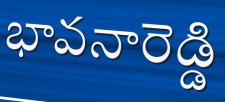
భావనారెడ్డి